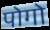
पोगो